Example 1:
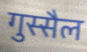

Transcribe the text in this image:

गुस्सैल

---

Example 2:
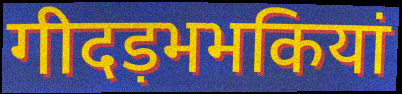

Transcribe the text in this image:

गीदड़भभकियां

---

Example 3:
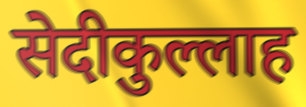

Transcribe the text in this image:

सेदीकुल्लाह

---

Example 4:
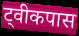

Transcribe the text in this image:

ट्वीकपास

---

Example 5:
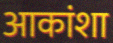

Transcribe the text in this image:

आकांशा